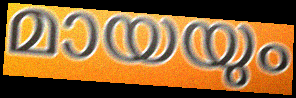
മായയും